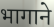
भागाने